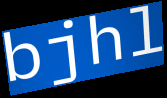
bjhl